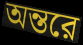
অন্তরে